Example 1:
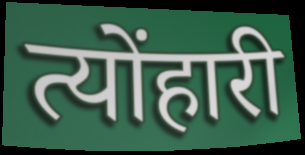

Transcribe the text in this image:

त्योंहारी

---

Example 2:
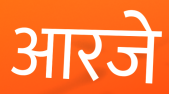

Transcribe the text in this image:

आरजे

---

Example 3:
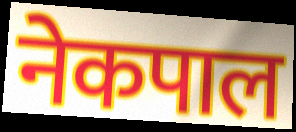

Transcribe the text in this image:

नेकपाल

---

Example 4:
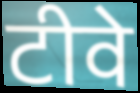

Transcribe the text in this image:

टीवे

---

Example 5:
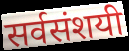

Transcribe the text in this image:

सर्वसंशयी